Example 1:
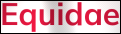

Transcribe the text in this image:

Equidae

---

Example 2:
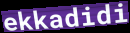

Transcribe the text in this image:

ekkadidi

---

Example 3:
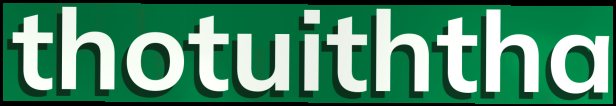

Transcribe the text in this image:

thotuiththa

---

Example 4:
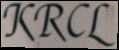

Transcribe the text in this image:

KRCL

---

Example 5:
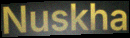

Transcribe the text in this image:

Nuskha